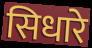
सिधारे